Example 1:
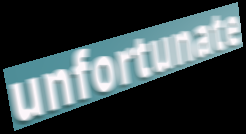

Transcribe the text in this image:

unfortunate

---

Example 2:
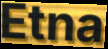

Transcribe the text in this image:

Etna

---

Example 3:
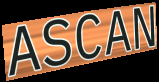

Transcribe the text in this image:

ASCAN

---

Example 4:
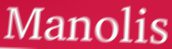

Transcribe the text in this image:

Manolis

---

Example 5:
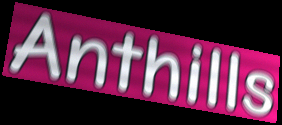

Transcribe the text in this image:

Anthills